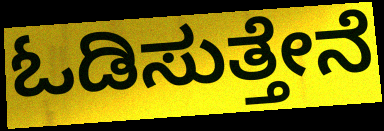
ಓಡಿಸುತ್ತೇನೆ